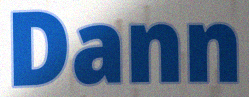
Dann